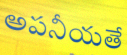
అపనీయతే